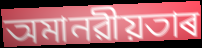
অমানৱীয়তাৰ